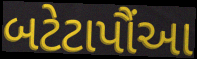
બટેટાપૌંઆ